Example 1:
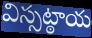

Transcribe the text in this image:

విస్సట్ఠాయ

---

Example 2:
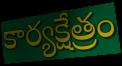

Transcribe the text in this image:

కార్యక్షేత్రం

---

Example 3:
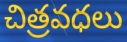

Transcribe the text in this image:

చిత్రవధలు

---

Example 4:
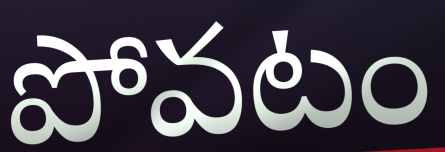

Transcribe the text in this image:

పోవటం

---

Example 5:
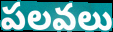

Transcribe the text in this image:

పలవలు